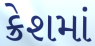
ક્રેશમાં